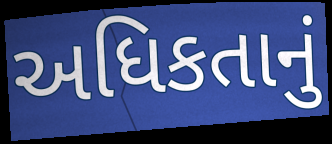
અધિકતાનું